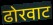
ढोरवाट